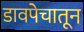
डावपेचातून